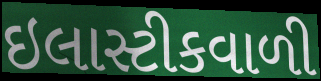
ઇલાસ્ટીકવાળી